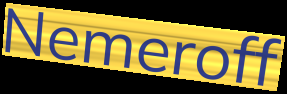
Nemeroff